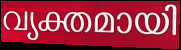
വ്യക്തമായി